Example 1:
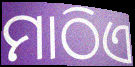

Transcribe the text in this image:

ମାଠିଏ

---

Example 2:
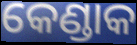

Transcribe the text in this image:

କେଣ୍ଡାକ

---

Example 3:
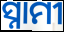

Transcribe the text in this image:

ସ୍ନାମୀ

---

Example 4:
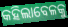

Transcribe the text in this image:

କହିଲାବେଳକୁ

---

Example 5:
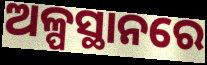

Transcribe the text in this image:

ଅଳ୍ପସ୍ଥାନରେ